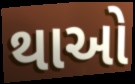
થાઓ